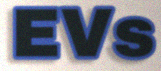
EVs